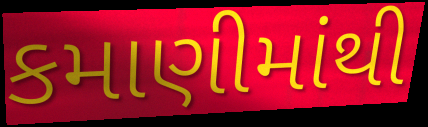
કમાણીમાંથી